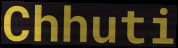
Chhuti